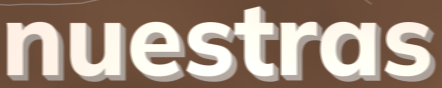
nuestras